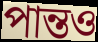
পান্তও